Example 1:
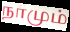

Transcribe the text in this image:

நாமும்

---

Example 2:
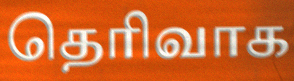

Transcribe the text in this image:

தெரிவாக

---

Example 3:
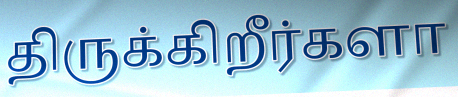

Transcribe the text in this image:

திருக்கிறீர்களா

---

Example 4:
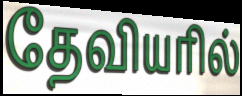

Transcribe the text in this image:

தேவியரில்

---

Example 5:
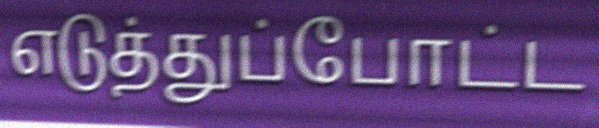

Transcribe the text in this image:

எடுத்துப்போட்ட